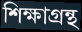
শিক্ষাগ্রন্থ